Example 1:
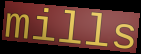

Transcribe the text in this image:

mills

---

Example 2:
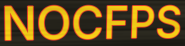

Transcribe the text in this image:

NOCFPS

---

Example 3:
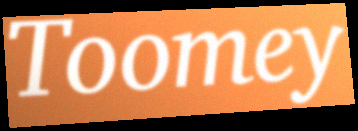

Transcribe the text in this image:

Toomey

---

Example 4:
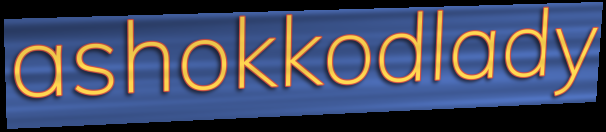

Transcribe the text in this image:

ashokkodlady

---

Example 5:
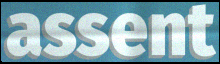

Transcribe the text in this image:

assent